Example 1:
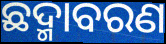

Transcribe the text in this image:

ଛଦ୍ମାବରଣ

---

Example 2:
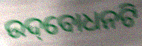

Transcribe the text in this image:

ଉଦ୍‌ବୋଧନଟି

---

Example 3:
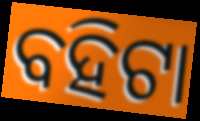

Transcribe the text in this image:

ବହିଟା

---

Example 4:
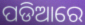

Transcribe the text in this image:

ପଡିଆରେ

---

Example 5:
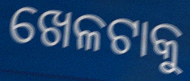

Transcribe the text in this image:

ଖେଳଟାକୁ